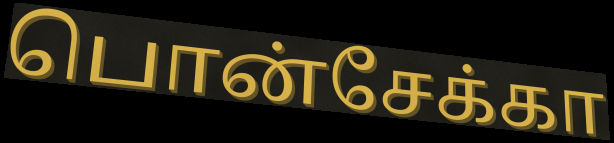
பொன்சேக்கா